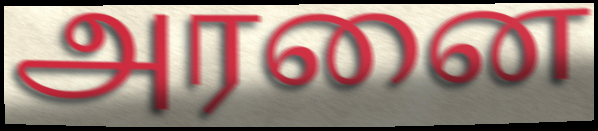
அரனை